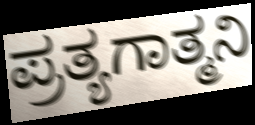
ಪ್ರತ್ಯಗಾತ್ಮನಿ